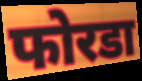
फोरडा